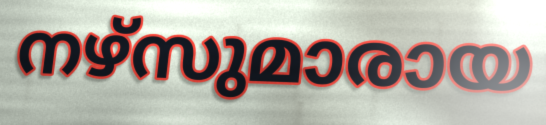
നഴ്സുമാരായ